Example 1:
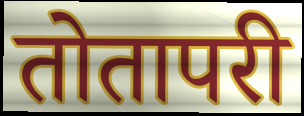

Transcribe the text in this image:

तोतापरी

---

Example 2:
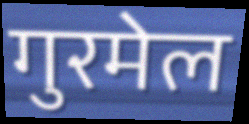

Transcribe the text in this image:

गुरमेल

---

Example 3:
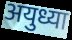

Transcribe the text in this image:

अयुध्या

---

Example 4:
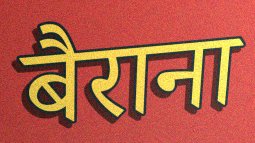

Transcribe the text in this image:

बैराना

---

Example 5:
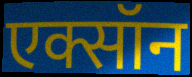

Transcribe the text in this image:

एक्सॉन